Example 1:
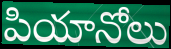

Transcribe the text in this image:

పియానోలు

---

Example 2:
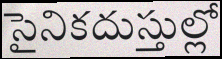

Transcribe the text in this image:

సైనికదుస్తుల్లో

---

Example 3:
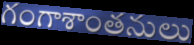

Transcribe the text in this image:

గంగాశాంతనులు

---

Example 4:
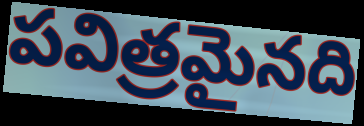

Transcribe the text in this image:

పవిత్రమైనది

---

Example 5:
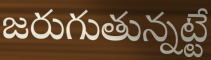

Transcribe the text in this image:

జరుగుతున్నట్టే